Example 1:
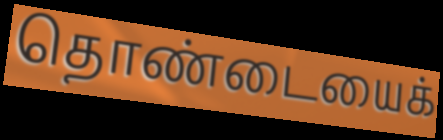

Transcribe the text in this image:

தொண்டையைக்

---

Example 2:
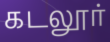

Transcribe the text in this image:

கடலூர்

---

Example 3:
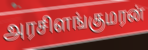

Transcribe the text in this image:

அரசிளங்குமரன்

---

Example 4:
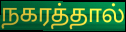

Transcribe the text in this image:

நகரத்தால்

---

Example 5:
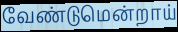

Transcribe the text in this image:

வேண்டுமென்றாய்